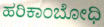
ಹರಿಕಾಂಬೋಧಿ